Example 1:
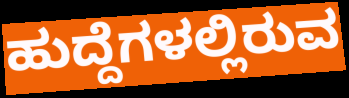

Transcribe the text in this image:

ಹುದ್ದೆಗಳಲ್ಲಿರುವ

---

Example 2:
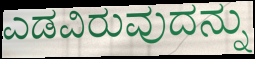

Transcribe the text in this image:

ಎಡವಿರುವುದನ್ನು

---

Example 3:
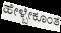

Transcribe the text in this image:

ಹೇಳ್ಬೇಕೂಂತ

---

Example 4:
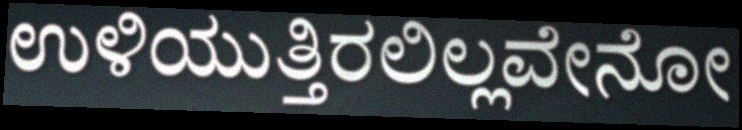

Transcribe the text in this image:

ಉಳಿಯುತ್ತಿರಲಿಲ್ಲವೇನೋ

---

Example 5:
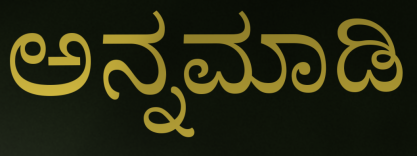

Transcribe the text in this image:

ಅನ್ನಮಾಡಿ